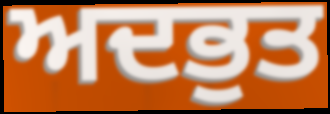
ਅਦਭੁਤ